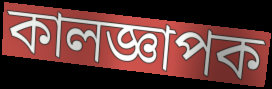
কালজ্ঞাপক